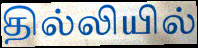
தில்லியில்